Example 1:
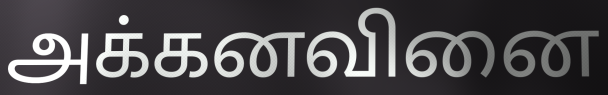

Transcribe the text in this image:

அக்கனவினை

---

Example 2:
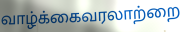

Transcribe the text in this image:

வாழ்க்கைவரலாற்றை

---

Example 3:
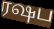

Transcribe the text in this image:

ரஷப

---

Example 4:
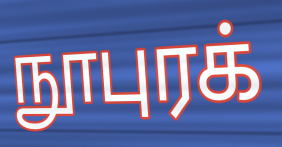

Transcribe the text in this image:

நூபுரக்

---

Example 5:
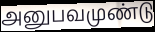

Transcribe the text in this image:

அனுபவமுண்டு